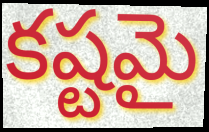
కష్టమై